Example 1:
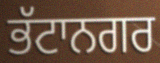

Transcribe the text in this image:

ਭੱਟਾਨਗਰ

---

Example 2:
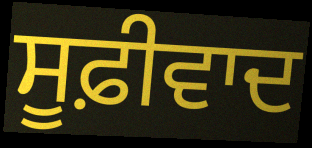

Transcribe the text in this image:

ਸੂਫ਼ੀਵਾਦ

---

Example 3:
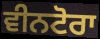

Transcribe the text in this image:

ਵੀਨਟੋਰਾ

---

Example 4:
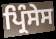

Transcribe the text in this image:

ਪ੍ਰਿੰਸੇਸ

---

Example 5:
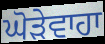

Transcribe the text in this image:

ਘੋੜੇਵਾਹਾ